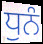
ਧੁਨੰ